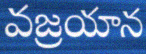
వజ్రయాన